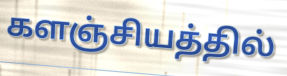
களஞ்சியத்தில்